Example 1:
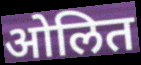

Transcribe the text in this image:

ओलित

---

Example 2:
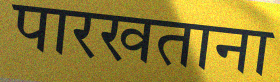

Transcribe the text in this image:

पारखताना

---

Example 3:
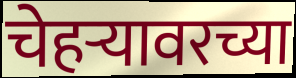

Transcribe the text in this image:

चेहर्‍यावरच्या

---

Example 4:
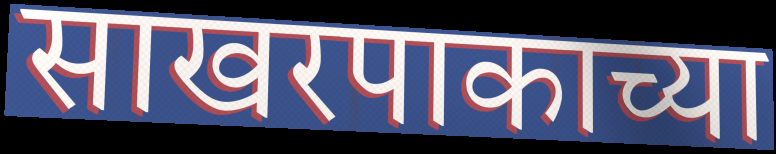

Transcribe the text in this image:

साखरपाकाच्या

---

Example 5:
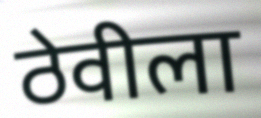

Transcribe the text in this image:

ठेवीला